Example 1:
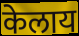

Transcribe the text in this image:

केलाय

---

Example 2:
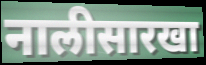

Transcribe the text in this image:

नालीसारखा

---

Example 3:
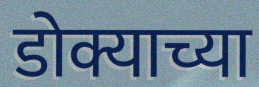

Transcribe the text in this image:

डोक्याच्या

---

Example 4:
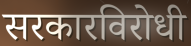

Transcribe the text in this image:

सरकारविरोधी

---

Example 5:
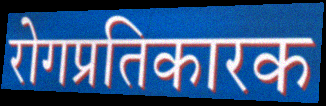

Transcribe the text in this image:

रोगप्रतिकारक